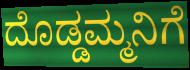
ದೊಡ್ಡಮ್ಮನಿಗೆ